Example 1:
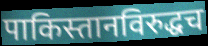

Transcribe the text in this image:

पाकिस्तानविरुद्धच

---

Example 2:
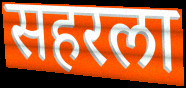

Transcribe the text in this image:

सहरला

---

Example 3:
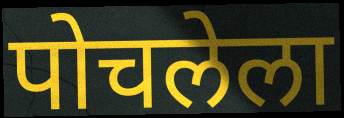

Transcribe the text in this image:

पोचलेला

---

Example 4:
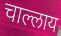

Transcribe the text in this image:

चाल्लाय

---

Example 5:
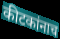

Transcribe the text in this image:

कीटकांनाच